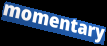
momentary